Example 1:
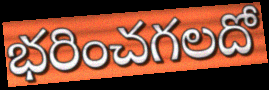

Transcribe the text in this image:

భరించగలదో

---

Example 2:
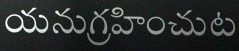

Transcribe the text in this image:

యనుగ్రహించుట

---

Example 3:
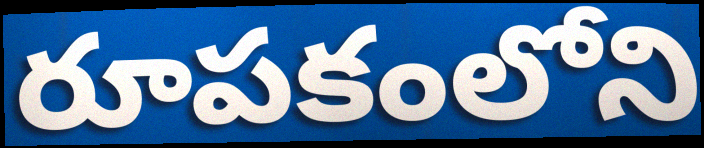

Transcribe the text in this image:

రూపకంలోని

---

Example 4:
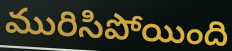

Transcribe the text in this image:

మురిసిపోయింది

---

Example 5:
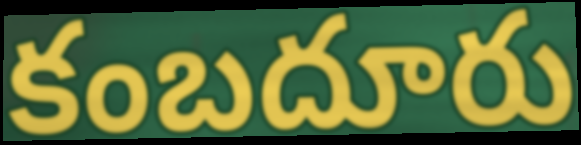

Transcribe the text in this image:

కంబదూరు